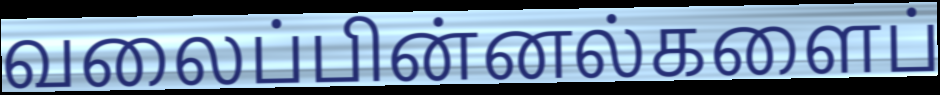
வலைப்பின்னல்களைப்